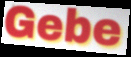
Gebe